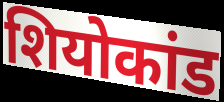
शियोकांड